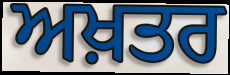
ਅਖ਼ਤਰ